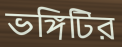
ভঙ্গিটির